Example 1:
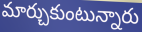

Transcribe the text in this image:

మార్చుకుంటున్నారు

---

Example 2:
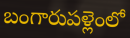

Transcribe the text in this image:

బంగారుపళ్లెంలో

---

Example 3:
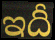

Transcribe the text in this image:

ఇదీ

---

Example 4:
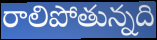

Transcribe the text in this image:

రాలిపోతున్నది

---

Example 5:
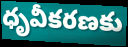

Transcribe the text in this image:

ధృవీకరణకు